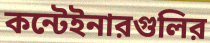
কন্টেইনারগুলির